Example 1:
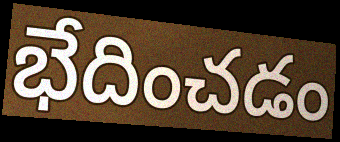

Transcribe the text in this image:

భేదించడం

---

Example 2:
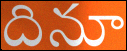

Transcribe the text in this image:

దినూ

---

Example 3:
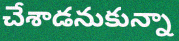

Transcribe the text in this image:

చేశాడనుకున్నా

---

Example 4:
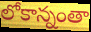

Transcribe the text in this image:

లోకాన్నంతా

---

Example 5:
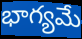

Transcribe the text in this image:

భాగ్యమే